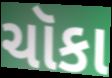
ચૉકા